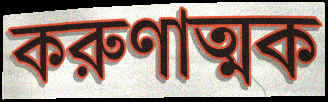
করুণাত্মক